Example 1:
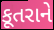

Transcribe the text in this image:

કૂતરાને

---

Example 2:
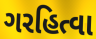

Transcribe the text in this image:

ગરહિત્વા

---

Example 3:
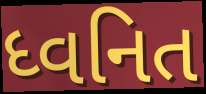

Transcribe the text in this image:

ધ્વનિત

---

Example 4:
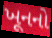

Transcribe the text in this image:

ખૂનનો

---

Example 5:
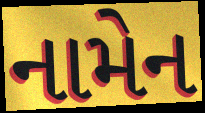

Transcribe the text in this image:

નામેન